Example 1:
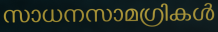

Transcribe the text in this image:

സാധനസാമഗ്രികൾ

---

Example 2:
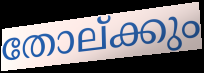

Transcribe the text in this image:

തോല്ക്കും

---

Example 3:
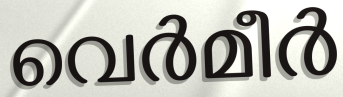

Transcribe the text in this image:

വെർമീർ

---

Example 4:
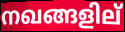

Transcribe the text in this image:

നഖങ്ങളില്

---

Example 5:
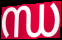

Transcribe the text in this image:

ന്ധ